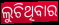
ଲୁଚିଥିବାର